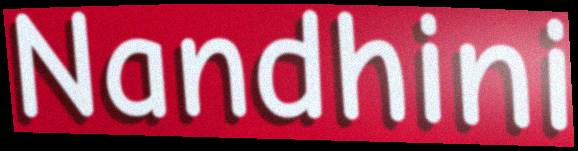
Nandhini